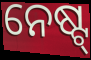
ନେଷ୍ଟ୍